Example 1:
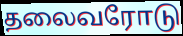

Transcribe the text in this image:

தலைவரோடு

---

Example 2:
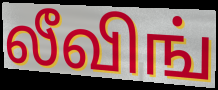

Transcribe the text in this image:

லீவிங்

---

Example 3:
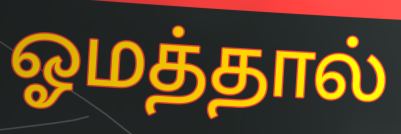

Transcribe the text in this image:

ஓமத்தால்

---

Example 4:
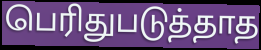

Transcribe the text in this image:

பெரிதுபடுத்தாத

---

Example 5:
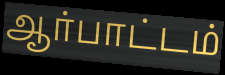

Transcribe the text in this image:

ஆர்பாட்டம்